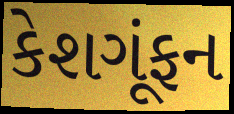
કેશગૂંફન